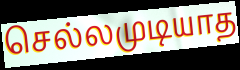
செல்லமுடியாத